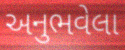
અનુભવેલા